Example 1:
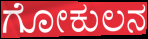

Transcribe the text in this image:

ಗೋಕುಲನ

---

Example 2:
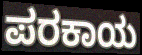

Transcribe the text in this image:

ಪರಕಾಯ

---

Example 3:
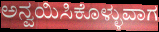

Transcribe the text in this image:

ಅನ್ವಯಿಸಿಕೊಳ್ಳುವಾಗ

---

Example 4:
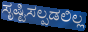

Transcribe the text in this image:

ಸೃಷ್ಟಿಸಲ್ಪಡಲಿಲ್ಲ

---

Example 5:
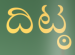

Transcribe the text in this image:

ದಿಟ್ಠ